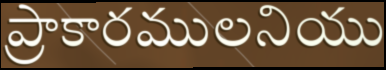
ప్రాకారములనియు